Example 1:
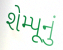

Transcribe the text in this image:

શેમ્પૂનું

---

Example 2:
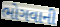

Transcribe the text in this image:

ભોગવાની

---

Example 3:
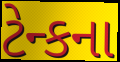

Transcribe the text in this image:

ટેન્કના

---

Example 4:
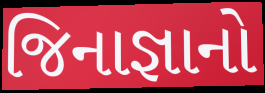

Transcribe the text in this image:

જિનાજ્ઞાનો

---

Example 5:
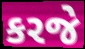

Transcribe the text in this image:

કરજે